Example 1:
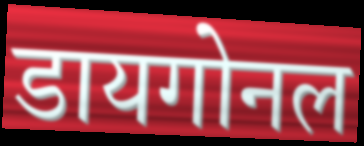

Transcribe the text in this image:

डायगोनल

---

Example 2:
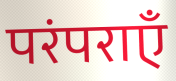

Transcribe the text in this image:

परंपराएँ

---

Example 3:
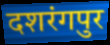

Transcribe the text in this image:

दशरंगपुर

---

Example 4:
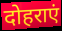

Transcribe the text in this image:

दोहराएं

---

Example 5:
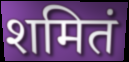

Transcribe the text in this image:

शमितं